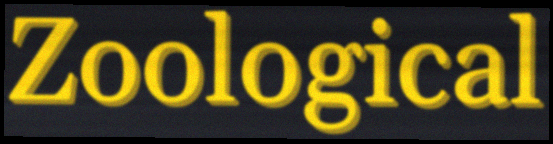
Zoological